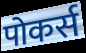
पोकर्स